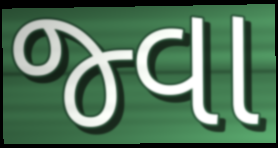
જ્વા